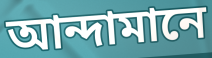
আন্দামানে